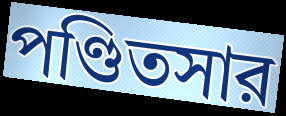
পণ্ডিতসার